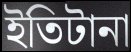
ইতিটানা